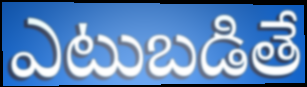
ఎటుబడితే